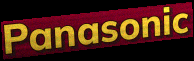
Panasonic